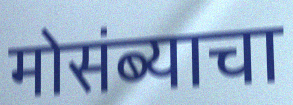
मोसंब्याचा